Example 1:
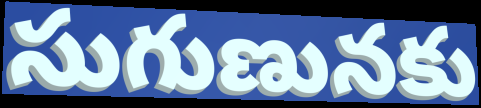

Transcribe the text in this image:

సుగుణునకు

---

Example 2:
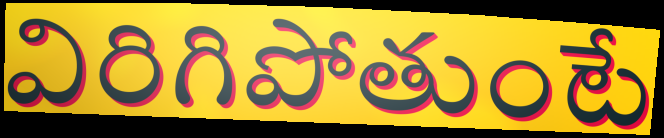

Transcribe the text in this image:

విరిగిపోతుంటే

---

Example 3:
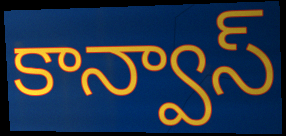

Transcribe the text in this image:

కాన్వాస్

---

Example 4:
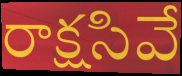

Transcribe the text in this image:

రాక్షసివే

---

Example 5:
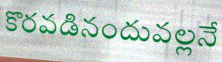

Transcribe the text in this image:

కొరవడినందువల్లనే